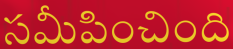
సమీపించింది